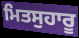
ਮਿਤਸੁਹਾਰੂ